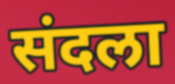
संदला